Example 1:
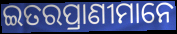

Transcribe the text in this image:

ଇତରପ୍ରାଣୀମାନେ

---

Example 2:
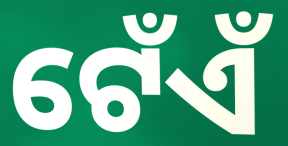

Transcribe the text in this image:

ଟେଁଏଁ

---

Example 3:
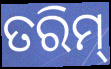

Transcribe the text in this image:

ତରିମ୍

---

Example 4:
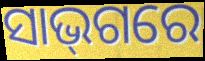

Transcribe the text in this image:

ସାଭ୍‌ଗରେ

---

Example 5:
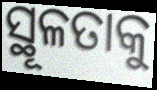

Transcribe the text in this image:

ସ୍ଥୂଳତାକୁ